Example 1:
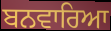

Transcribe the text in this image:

ਬਨਵਾਰਿਆ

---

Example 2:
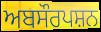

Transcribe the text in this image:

ਅਬਸੌਰਪਸ਼ਨ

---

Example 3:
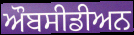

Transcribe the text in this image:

ਔਬਸੀਡੀਅਨ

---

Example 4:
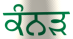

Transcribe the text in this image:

ਕੰਨਡ਼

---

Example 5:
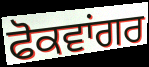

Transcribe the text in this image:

ਫੋਕਵਾਂਗਰ